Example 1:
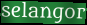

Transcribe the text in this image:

selangor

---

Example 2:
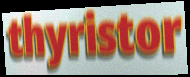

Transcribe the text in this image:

thyristor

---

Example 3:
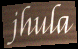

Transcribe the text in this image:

jhula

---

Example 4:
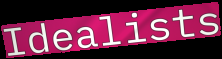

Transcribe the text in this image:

Idealists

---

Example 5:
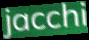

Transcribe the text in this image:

jacchi